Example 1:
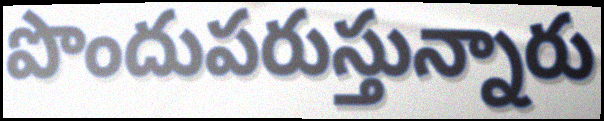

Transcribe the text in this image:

పొందుపరుస్తున్నారు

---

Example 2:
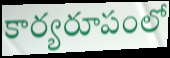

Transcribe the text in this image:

కార్యరూపంలో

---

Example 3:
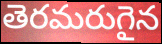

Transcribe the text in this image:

తెరమరుగైన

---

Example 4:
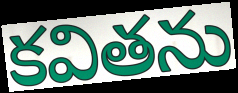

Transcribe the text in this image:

కవితను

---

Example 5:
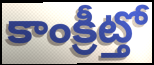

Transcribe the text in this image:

కాంక్రీట్తో